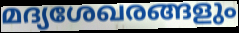
മദ്യശേഖരങ്ങളും